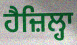
ਹੈਜ਼ਿਲ੍ਹਾ